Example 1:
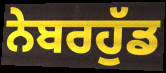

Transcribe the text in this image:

ਨੇਬਰਹੁੱਡ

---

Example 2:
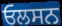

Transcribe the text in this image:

ਓਲਸਨ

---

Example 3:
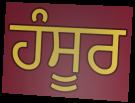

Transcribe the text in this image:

ਹੰਸੂਰ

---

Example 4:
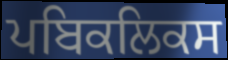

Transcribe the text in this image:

ਪਬਿਕਲਿਕਸ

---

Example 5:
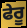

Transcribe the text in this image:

ਫੇਰੂ